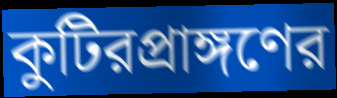
কুটিরপ্রাঙ্গণের